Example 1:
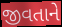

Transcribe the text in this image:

જીવતાને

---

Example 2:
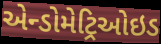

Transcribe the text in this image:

એન્ડોમેટ્રિઓઇડ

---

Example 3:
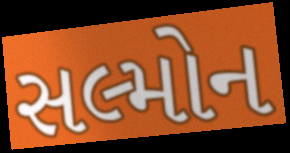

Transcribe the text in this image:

સલ્મોન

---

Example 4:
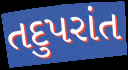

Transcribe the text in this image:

તદુપરાંત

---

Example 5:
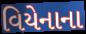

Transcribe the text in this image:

વિયેનાના